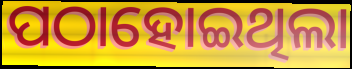
ପଠାହୋଇଥିଲା